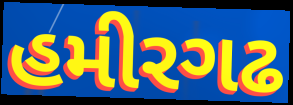
હમીરગઢ